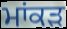
ਮਾਂਕੜ